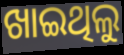
ଖାଇଥିଲୁ